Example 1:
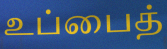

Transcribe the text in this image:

உப்பைத்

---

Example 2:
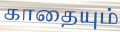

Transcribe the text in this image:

காதையும்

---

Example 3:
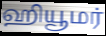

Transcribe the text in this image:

ஹியூமர்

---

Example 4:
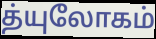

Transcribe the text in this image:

த்யுலோகம்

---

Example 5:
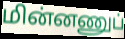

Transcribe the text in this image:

மின்னணுப்